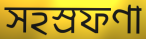
সহস্রফণা